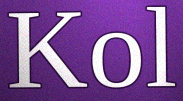
Kol